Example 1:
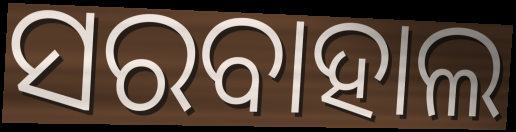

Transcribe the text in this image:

ସରବାହାଲ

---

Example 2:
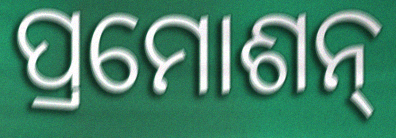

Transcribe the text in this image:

ପ୍ରମୋଶନ୍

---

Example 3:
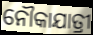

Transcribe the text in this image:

ନୌକାଯାତ୍ରୀ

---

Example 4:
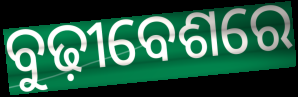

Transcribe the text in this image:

ବୁଢ଼ୀବେଶରେ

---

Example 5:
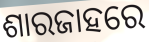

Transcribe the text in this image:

ଶାରଜାହରେ